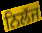
ਨਿਲੱਜ